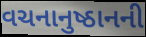
વચનાનુષ્ઠાનની